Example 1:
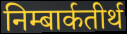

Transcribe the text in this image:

निम्बार्कतीर्थ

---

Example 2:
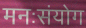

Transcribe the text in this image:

मनःसंयोग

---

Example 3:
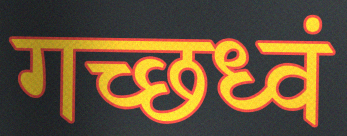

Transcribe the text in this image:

गच्छध्वं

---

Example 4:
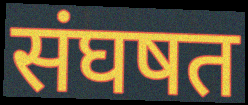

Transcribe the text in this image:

संघषत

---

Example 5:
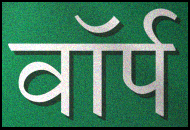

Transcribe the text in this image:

वॉर्प